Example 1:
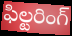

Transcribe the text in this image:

ఫిల్టరింగ్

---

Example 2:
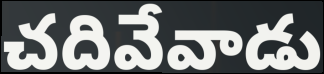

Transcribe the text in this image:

చదివేవాడు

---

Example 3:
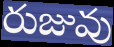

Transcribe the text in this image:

రుజువు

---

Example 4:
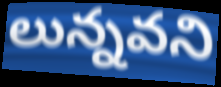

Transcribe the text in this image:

లున్నవని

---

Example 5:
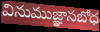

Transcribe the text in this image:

వినుముజ్ఞానబోధ